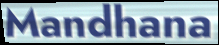
Mandhana